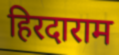
हिरदाराम